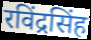
रविंद्रसिंह